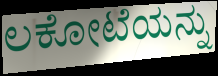
ಲಕೋಟೆಯನ್ನು